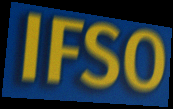
IFSO